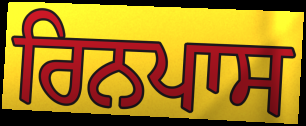
ਰਿਨਪਾਸ